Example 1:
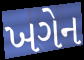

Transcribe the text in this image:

ખગેન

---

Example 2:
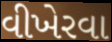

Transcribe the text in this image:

વીખેરવા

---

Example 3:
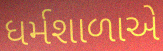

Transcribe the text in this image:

ધર્મશાળાએ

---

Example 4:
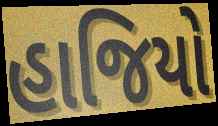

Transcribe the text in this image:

હાજિયો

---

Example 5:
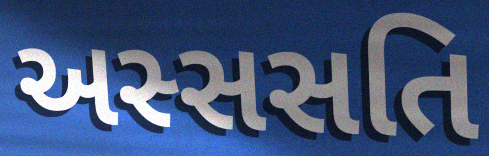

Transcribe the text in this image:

અસ્સસતિ